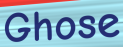
Ghose